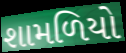
શામળિયો